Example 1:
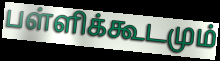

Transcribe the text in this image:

பள்ளிக்கூடமும்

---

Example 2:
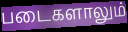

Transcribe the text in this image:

படைகளாலும்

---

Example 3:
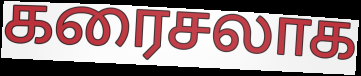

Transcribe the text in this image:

கரைசலாக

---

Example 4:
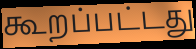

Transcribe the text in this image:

கூறப்பட்டது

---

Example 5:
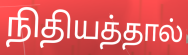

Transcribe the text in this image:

நிதியத்தால்